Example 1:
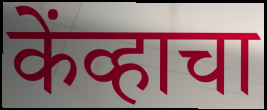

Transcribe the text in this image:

केंव्हाचा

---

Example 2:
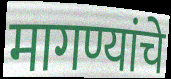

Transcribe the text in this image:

मागण्यांचे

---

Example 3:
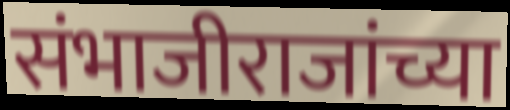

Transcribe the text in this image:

संभाजीराजांच्या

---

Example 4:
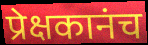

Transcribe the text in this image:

प्रेक्षकानंच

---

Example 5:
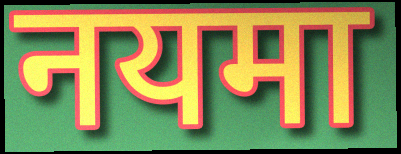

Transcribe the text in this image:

नयमा